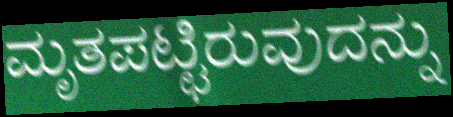
ಮೃತಪಟ್ಟಿರುವುದನ್ನು